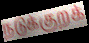
நடுக்குறக்